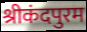
श्रीकंदपुरम